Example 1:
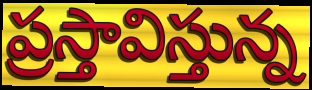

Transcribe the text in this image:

ప్రస్తావిస్తున్న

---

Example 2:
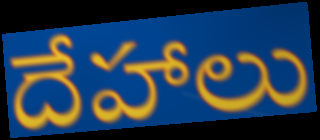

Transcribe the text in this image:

దేహాలు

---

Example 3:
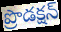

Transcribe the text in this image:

ప్రొడక్షన్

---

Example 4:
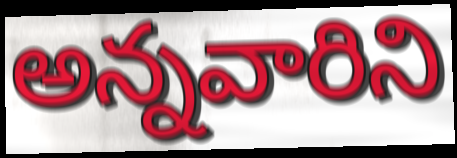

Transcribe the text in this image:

అన్నవారిని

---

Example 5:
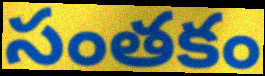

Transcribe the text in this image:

సంతకం